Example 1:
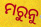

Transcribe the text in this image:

ମରୁନୁ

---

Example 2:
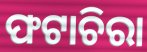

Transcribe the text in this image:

ଫଟାଚିରା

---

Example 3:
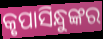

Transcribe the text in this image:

କୃପାସିନ୍ଧୁଙ୍କର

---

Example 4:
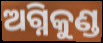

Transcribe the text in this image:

ଅଗ୍ନିକୁଣ୍ଡ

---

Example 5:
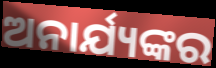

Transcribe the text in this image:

ଅନାର୍ଯ୍ୟଙ୍କର